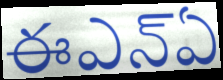
ఈఎన్ఏ